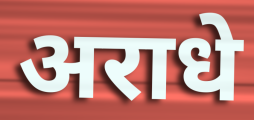
अराधे